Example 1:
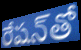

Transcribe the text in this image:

రేషన్‌తో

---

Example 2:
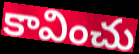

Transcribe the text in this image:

కావించు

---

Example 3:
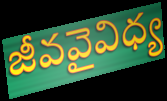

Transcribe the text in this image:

జీవవైవిధ్య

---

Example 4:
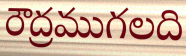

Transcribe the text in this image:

రౌద్రముగలది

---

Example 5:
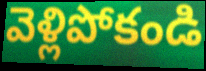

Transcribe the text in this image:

వెళ్లిపోకండి